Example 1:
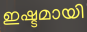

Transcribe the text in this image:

ഇഷ്ടമായി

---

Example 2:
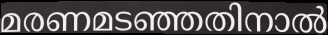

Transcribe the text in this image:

മരണമടഞ്ഞതിനാൽ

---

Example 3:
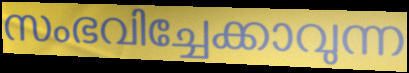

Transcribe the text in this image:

സംഭവിച്ചേക്കാവുന്ന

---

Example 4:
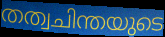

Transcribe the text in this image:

തത്വചിന്തയുടെ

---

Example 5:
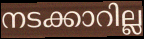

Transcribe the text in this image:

നടക്കാറില്ല